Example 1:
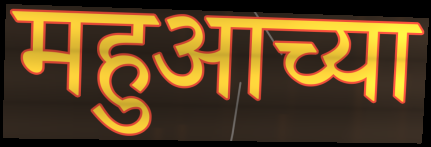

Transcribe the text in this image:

महुआच्या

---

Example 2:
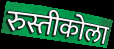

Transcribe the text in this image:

रुस्तीकोला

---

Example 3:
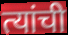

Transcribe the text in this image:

त्‍यांची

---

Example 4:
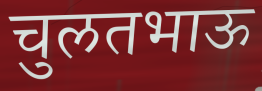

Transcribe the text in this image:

चुलतभाऊ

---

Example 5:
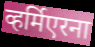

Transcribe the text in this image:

व्हर्मिएरना